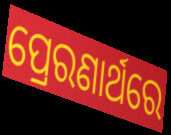
ପ୍ରେରଣାର୍ଥରେ